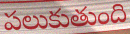
పలుకుతుంది